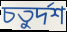
চতুৰ্দশ